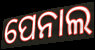
ପେନାଲ